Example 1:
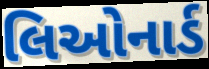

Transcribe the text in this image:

લિઓનાર્ડ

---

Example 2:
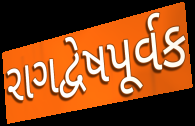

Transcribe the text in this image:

રાગદ્વેષપૂર્વક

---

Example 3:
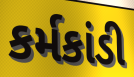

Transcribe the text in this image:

કર્મકાંડી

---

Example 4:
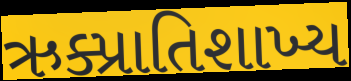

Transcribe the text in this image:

ઋક્પ્રાતિશાખ્ય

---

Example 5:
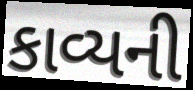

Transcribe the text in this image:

કાવ્યની